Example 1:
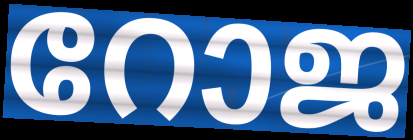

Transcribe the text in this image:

റോജ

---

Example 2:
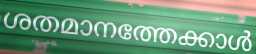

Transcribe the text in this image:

ശതമാനത്തേക്കാൾ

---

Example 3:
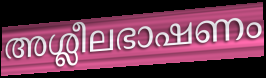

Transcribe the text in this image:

അശ്ലീലഭാഷണം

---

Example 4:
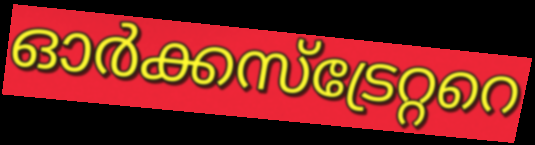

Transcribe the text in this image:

ഓർക്കസ്ട്രേറ്ററെ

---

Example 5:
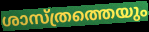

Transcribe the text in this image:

ശാസ്ത്രത്തെയും